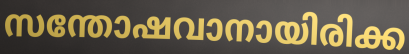
സന്തോഷവാനായിരിക്ക